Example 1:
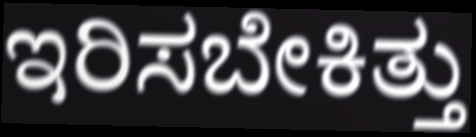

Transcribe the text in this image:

ಇರಿಸಬೇಕಿತ್ತು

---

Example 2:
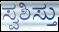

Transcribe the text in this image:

ಸ್ವಶಿಸ್ತು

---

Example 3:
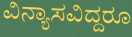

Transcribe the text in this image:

ವಿನ್ಯಾಸವಿದ್ದರೂ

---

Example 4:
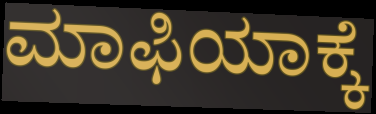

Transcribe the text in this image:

ಮಾಫಿಯಾಕ್ಕೆ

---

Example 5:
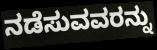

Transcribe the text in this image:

ನಡೆಸುವವರನ್ನು